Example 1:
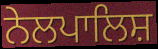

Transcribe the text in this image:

ਨੇਲਪਾਲਿਸ਼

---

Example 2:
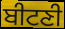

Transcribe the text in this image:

ਬੀਟਣੀ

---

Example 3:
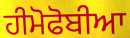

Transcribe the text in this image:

ਹੀਮੋਫੋਬੀਆ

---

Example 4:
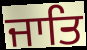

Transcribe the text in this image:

ਜਾਤਿ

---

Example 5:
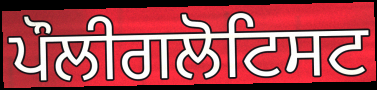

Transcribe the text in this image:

ਪੌਲੀਗਲੋਟਿਸਟ